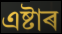
এষ্টাৰ